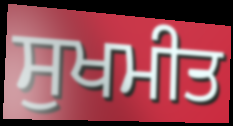
ਸੁਖਮੀਤ